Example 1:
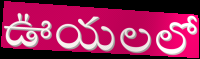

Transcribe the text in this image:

ఊయలలో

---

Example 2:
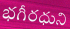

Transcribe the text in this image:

భగీరధుని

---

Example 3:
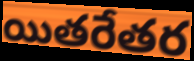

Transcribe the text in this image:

యితరేతర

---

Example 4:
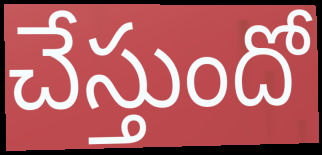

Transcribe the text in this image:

చేస్తుందో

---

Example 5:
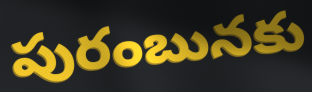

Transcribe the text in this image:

పురంబునకు